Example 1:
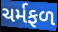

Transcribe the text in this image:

ચર્મફળ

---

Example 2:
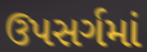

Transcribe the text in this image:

ઉપસર્ગમાં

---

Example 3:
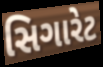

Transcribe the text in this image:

સિગારેટ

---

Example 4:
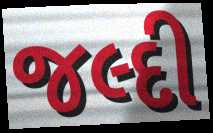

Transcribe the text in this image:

જલ્દી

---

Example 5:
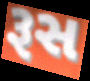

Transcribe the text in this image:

રૂસ